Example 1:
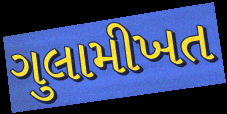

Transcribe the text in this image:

ગુલામીખત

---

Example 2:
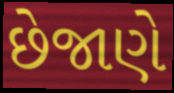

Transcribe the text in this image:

છેજાણે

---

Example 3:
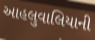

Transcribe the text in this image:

આહલુવાલિયાની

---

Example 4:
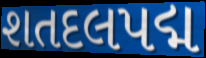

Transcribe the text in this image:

શતદલપદ્મ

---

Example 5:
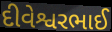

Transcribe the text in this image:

દીવેશ્વરભાઈ